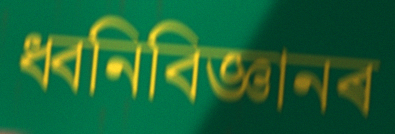
ধ্বনিবিজ্ঞানৰ